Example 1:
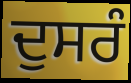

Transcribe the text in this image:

ਦੁਸਰੰ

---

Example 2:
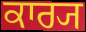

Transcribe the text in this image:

ਕਾਰ੍ਯ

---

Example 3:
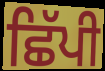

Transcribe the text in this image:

ਛਿੱਪੀ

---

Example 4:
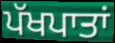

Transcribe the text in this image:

ਪੱਖਪਾਤਾਂ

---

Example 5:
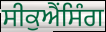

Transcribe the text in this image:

ਸੀਕੁਐਂਸਿੰਗ